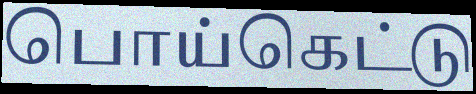
பொய்கெட்டு